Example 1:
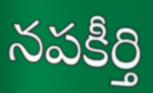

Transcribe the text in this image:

నపకీర్తి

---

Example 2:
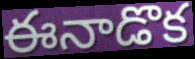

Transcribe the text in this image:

ఈనాడొక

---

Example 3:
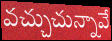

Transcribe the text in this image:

వచ్చుచున్నావే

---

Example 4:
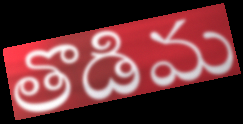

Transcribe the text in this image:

తొడిమ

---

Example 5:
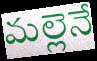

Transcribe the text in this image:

మల్లెనే